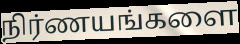
நிர்ணயங்களை